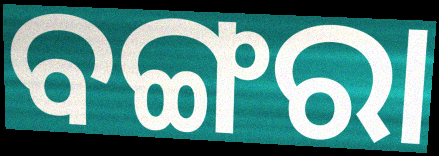
ବଙ୍ଗରା